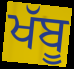
ਖੱਬੂ